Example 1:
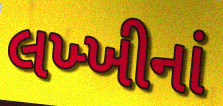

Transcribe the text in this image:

લખ્ખીનાં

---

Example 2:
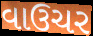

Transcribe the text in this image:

વાઉચર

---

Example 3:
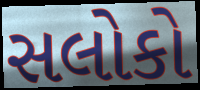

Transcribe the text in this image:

સલોકો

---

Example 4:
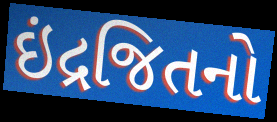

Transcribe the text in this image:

ઇંદ્રજિતનો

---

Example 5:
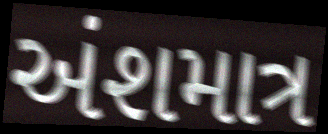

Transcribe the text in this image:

અંશમાત્ર